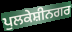
ਪੁਲਕੇਸ਼ੀਨਗਰ